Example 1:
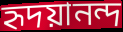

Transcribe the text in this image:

হৃদয়ানন্দ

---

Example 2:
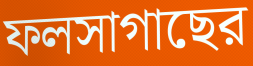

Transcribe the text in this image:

ফলসাগাছের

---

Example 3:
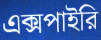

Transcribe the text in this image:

এক্সপাইরি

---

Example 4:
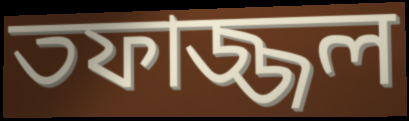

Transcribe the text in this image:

তফাজ্জল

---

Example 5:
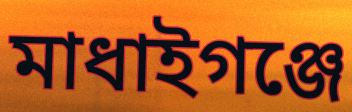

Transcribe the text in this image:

মাধাইগঞ্জে